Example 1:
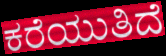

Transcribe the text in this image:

ಕರೆಯುತಿದೆ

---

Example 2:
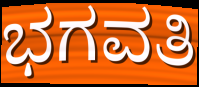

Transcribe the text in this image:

ಭಗವತಿ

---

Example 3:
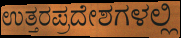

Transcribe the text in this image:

ಉತ್ತರಪ್ರದೇಶಗಳಲ್ಲಿ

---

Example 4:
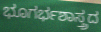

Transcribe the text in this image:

ಭೂಗರ್ಭಶಾಸ್ತ್ರದ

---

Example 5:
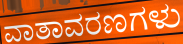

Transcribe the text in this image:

ವಾತಾವರಣಗಳು